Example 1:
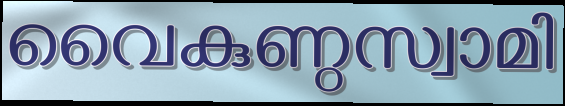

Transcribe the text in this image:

വൈകുണ്ഠസ്വാമി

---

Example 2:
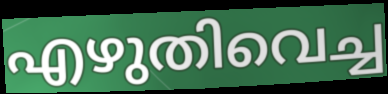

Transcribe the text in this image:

എഴുതിവെച്ച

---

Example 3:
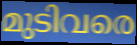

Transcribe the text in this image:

മുടിവരെ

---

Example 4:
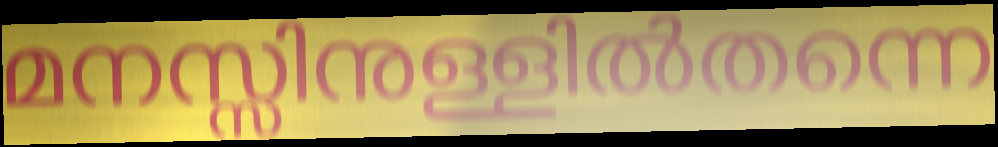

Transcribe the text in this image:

മനസ്സിനുള്ളിൽതന്നെ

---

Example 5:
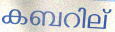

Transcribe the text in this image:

കബറില്